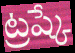
ట్రష్కే